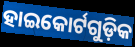
ହାଇକୋର୍ଟଗୁଡ଼ିକ